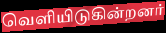
வெளியிடுகின்றனர்